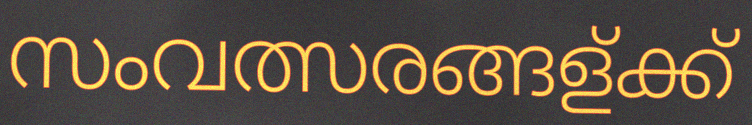
സംവത്സരങ്ങള്ക്ക്